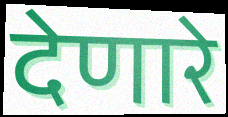
देणारे